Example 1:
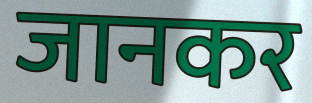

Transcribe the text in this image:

जानकर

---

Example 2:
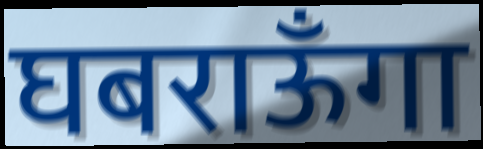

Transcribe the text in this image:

घबराऊँगा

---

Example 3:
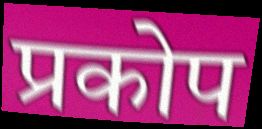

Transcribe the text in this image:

प्रकोप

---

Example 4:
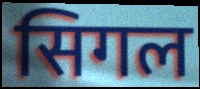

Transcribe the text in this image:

सिगल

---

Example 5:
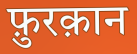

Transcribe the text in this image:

फ़ुरक़ान